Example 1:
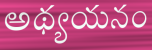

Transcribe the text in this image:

అథ్యయనం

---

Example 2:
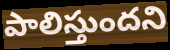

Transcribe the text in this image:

పాలిస్తుందని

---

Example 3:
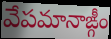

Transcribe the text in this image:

వేపమానాఙ్గీం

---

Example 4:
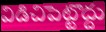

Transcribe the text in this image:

విడిచిపెట్టొద్దు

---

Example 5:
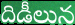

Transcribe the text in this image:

దిడీలున